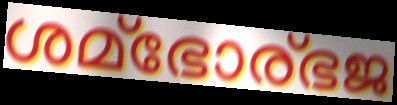
ശമ്ഭോര്ഭജ